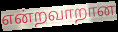
என்றவாறான